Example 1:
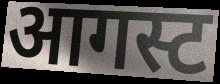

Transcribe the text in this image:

आगस्ट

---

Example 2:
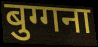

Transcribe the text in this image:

बुग्गना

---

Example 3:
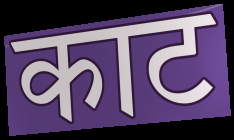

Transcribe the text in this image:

काट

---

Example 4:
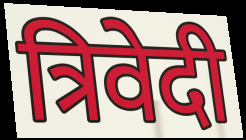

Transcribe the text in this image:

त्रिवेदी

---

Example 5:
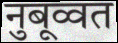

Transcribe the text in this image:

नुबूव्वत